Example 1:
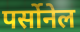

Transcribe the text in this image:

पर्सोनेल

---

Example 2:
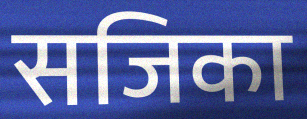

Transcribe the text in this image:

सजिका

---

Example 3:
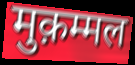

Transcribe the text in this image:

मुक़म्मल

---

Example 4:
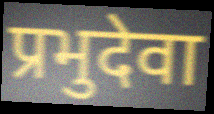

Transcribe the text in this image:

प्रभुदेवा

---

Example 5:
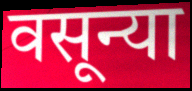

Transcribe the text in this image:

वसून्या